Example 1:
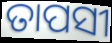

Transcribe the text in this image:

ତାପସୀ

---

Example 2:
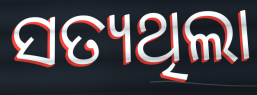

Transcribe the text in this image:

ସତ୍ୟଥିଲା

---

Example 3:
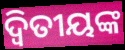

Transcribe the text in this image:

ଦ୍ଵିତୀୟଙ୍କ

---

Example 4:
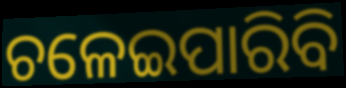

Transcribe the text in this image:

ଚଳେଇପାରିବି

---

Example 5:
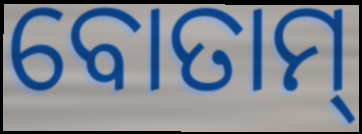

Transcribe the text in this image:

ବୋତାମ୍